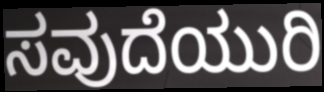
ಸವುದೆಯುರಿ